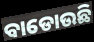
ବାଡୋଉଛି